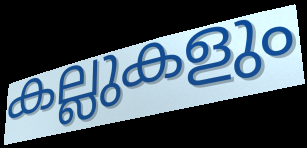
കല്ലുകളും